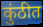
कुंठीत